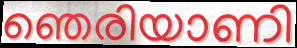
ഞെരിയാണി